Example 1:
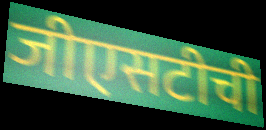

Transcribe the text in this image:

जीएसटीची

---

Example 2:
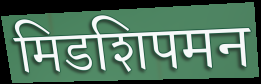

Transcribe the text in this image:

मिडशिपमन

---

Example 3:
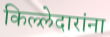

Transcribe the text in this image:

किल्लेदारांना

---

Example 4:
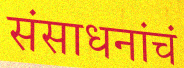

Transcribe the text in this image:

संसाधनांचं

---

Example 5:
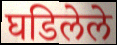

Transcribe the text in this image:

घडिलेले